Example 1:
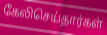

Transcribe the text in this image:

கேலிசெய்தார்கள்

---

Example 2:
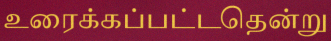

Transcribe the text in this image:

உரைக்கப்பட்டதென்று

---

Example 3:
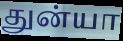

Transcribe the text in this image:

துன்யா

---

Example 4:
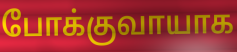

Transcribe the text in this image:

போக்குவாயாக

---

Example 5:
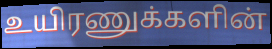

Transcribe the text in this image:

உயிரணுக்களின்